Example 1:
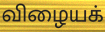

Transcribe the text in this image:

விழையக்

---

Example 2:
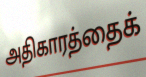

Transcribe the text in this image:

அதிகாரத்தைக்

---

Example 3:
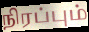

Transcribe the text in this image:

நிரப்பும்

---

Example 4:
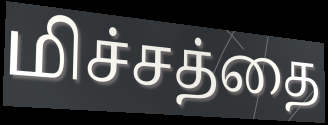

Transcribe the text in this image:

மிச்சத்தை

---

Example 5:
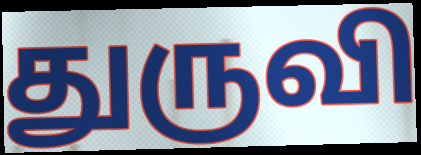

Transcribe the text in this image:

துருவி